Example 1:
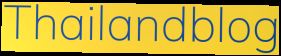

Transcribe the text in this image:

Thailandblog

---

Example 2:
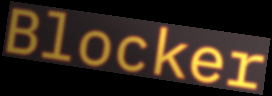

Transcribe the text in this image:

Blocker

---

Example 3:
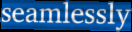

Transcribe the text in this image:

seamlessly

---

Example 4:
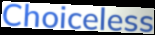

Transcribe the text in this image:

Choiceless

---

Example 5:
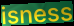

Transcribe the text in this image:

isness